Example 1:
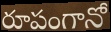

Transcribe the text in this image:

రూపంగానో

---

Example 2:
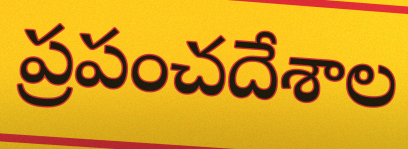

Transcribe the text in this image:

ప్రపంచదేశాల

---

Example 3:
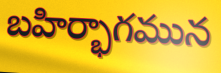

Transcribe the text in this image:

బహిర్భాగమున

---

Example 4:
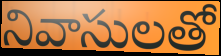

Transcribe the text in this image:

నివాసులతో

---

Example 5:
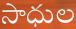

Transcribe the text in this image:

సాధుల